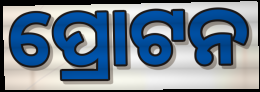
ପ୍ରୋଟନ